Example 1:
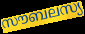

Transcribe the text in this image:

സൗബലസ്യ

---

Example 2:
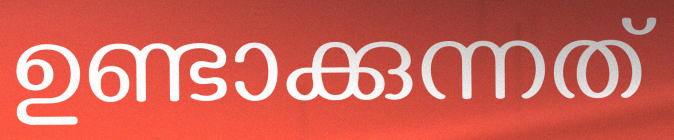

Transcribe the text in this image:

ഉണ്ടാക്കുന്നത്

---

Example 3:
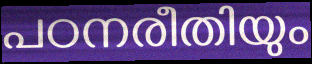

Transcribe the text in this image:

പഠനരീതിയും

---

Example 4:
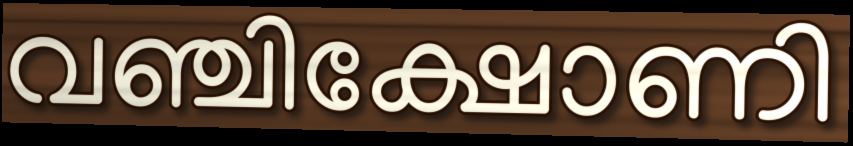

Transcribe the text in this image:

വഞ്ചിക്ഷോണി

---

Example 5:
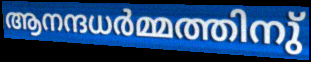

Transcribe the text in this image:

ആനന്ദധർമ്മത്തിനു്